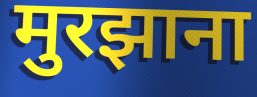
मुरझाना